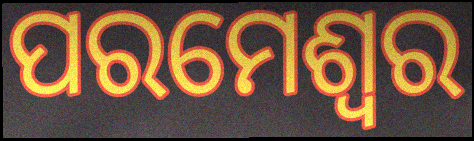
ପରମେଶ୍ବର